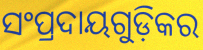
ସଂପ୍ରଦାୟଗୁଡ଼ିକର